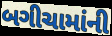
બગીચામાંની